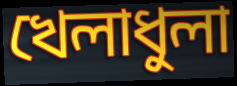
খেলাধুলা